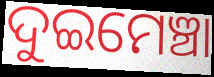
ଦୁଇମେଞ୍ଚା